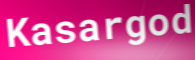
Kasargod